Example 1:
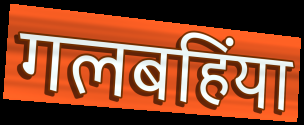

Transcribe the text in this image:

गलबहिंया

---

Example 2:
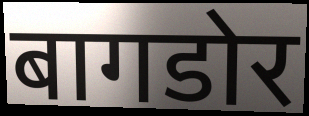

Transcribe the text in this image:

बागडोर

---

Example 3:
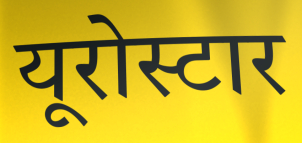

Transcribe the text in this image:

यूरोस्टार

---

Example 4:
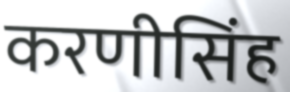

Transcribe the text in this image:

करणीसिंह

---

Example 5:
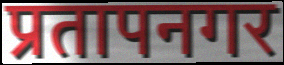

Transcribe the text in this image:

प्रतापनगर